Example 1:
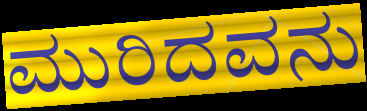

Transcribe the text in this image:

ಮುರಿದವನು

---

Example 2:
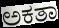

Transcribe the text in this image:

ಅಕತಾ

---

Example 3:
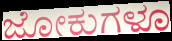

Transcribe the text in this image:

ಜೋಕುಗಳೂ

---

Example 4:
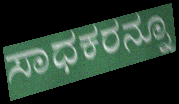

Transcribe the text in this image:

ಸಾಧಕರನ್ನೂ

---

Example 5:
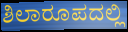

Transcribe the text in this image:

ಶಿಲಾರೂಪದಲ್ಲಿ